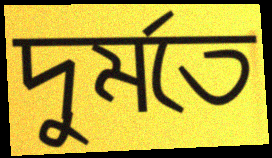
দুর্মতে